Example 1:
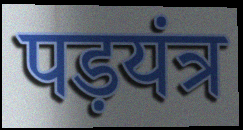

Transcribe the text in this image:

पड़यंत्र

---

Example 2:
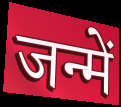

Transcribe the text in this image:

जन्में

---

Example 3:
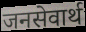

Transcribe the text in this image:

जनसेवार्थ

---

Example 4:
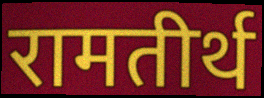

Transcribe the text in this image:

रामतीर्थ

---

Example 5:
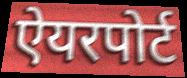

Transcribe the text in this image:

ऐयरपोर्ट